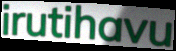
irutihavu